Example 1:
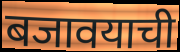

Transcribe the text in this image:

बजावयाची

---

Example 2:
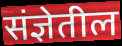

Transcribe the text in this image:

संज्ञेतील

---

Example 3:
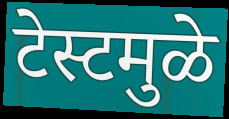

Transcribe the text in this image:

टेस्टमुळे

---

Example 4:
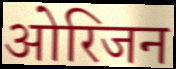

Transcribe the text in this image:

ओरिजन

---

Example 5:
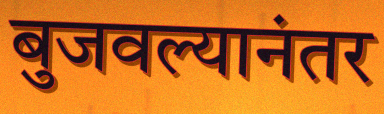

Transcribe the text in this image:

बुजवल्यानंतर